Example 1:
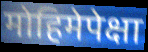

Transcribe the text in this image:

मोहिमेपेक्षा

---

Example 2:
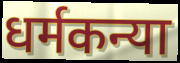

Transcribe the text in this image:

धर्मकन्या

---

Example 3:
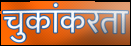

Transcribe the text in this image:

चुकांकरता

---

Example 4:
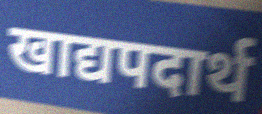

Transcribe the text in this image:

खाद्यपदार्थ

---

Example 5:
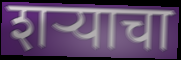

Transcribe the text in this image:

शर्‍याचा